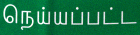
நெய்யப்பட்ட